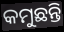
କମୁଛନ୍ତି